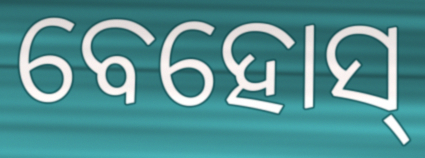
ବେହୋସ୍